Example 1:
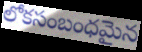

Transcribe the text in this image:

లోకసంబంధమైన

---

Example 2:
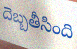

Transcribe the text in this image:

దెబ్బతీసింది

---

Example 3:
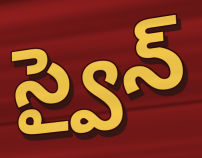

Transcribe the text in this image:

స్వైన్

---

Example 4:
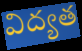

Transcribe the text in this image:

విద్యత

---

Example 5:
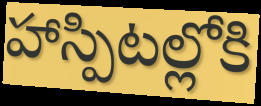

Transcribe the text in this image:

హాస్పిటల్లోకి